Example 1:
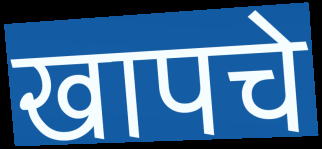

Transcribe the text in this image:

खापचे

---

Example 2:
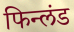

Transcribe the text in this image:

फिन्लंड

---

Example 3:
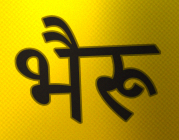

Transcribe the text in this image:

भैरू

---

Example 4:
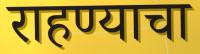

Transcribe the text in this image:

राहण्याचा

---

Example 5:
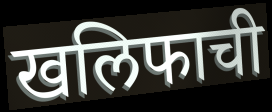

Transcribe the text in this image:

खलिफाची